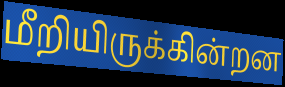
மீறியிருக்கின்றன